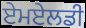
ਏਮਏਲਡੀ